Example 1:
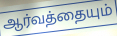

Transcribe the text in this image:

ஆர்வத்தையும்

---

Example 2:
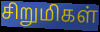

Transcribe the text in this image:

சிறுமிகள்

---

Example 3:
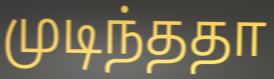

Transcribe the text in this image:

முடிந்ததா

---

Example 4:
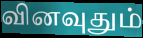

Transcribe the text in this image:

வினவுதும்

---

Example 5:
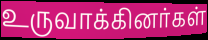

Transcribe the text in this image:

உருவாக்கினர்கள்